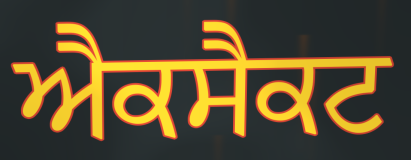
ਐਕਸੈਕਟ